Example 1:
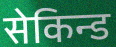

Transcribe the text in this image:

सेकिन्ड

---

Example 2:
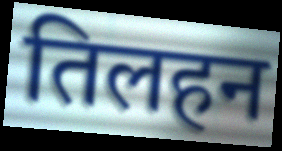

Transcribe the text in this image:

तिलहन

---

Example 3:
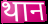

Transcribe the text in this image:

थान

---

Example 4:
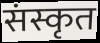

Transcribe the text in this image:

संस्‍कृत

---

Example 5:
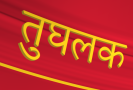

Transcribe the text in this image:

तुघलक